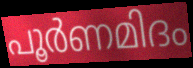
പൂർണമിദം